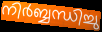
നിർബ്ബന്ധിച്ചു